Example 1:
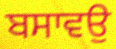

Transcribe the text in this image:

ਬਸਾਵਉ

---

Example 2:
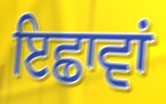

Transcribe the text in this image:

ਇਛਾਵਾਂ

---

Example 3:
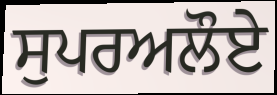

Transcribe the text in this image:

ਸੁਪਰਅਲੌਏ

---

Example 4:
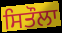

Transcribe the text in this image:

ਸਿਤੌਲਾ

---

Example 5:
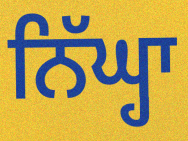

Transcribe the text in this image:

ਨਿੱਘ੍ਹਾ